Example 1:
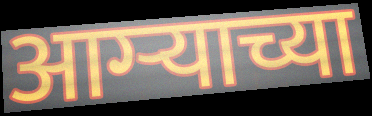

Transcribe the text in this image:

आग्ऱ्याच्या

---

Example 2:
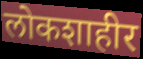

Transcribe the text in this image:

लोकशाहीर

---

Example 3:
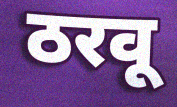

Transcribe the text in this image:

ठरवू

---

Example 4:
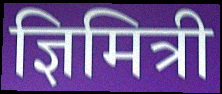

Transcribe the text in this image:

ज्ञिमित्री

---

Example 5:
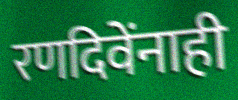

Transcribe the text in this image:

रणदिवेंनाही